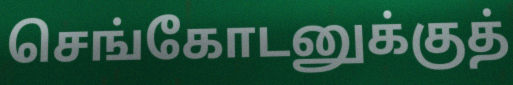
செங்கோடனுக்குத்